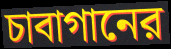
চাবাগানের